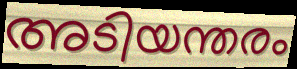
അടിയന്തരം